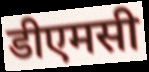
डीएमसी